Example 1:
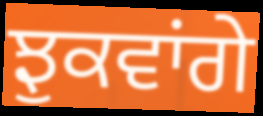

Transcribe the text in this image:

ਝੁਕਵਾਂਗੇ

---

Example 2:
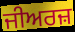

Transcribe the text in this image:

ਜੀਅਰਜ਼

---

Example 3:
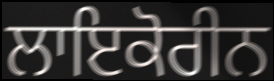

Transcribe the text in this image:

ਲਾਇਕੋਰੀਨ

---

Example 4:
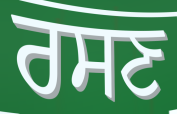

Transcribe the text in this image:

ਰਸਣ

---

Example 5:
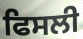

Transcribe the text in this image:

ਫਿਸਲੀ